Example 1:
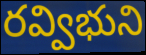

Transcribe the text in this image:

రవ్విభుని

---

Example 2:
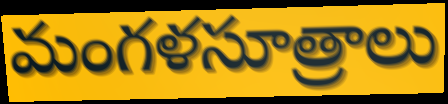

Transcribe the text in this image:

మంగళసూత్రాలు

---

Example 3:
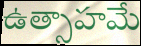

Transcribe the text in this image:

ఉత్సాహమే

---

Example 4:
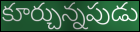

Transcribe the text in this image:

కూర్చున్నపుడు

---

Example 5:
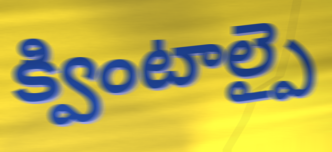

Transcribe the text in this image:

క్వింటాల్పై